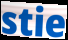
stie